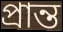
প্রান্ত